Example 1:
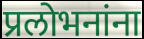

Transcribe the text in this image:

प्रलोभनांना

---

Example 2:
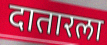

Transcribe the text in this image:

दातारला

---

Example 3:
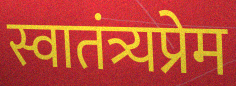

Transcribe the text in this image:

स्वातंत्र्यप्रेम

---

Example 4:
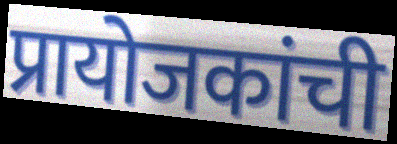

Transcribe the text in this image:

प्रायोजकांची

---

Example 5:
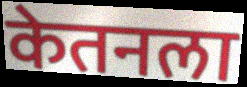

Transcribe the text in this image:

केतनला